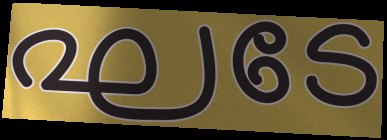
ഘടേ